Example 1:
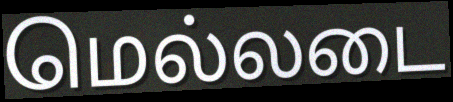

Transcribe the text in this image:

மெல்லடை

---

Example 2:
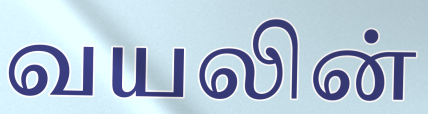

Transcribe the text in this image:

வயலின்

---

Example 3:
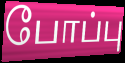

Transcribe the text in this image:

போப்பு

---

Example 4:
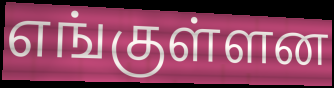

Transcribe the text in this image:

எங்குள்ளன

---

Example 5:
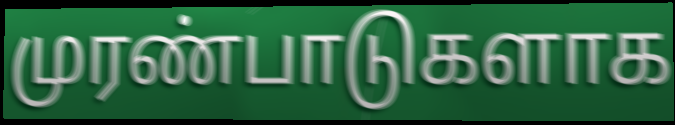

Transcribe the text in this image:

முரண்பாடுகளாக